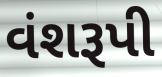
વંશરૂપી